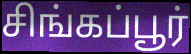
சிங்கப்பூர்